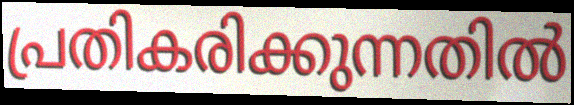
പ്രതികരിക്കുന്നതിൽ